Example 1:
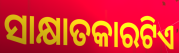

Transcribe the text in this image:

ସାକ୍ଷାତକାରଟିଏ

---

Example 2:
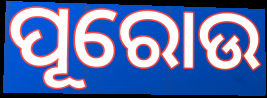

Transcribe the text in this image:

ପୂରୋଉ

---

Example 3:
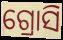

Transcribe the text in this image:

ଗ୍ରୋସି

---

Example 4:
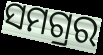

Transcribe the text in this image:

ସମଗ୍ରର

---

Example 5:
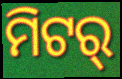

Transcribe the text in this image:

ମିଟର୍